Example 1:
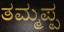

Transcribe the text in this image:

ತಮ್ಮಪ್ಪ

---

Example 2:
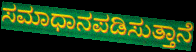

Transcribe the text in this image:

ಸಮಾಧಾನಪಡಿಸುತ್ತಾನೆ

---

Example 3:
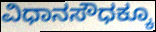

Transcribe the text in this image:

ವಿಧಾನಸೌಧಕ್ಕೂ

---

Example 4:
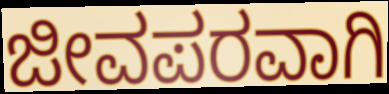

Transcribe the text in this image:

ಜೀವಪರವಾಗಿ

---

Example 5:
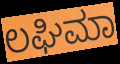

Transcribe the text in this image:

ಲಘಿಮಾ